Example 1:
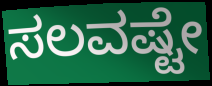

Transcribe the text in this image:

ಸಲವಷ್ಟೇ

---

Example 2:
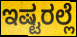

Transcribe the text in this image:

ಇಷ್ಟರಲ್ಲೆ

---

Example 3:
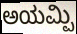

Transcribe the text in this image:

ಅಯಮ್ಪಿ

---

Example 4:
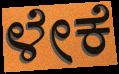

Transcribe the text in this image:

ಳೇಕೆ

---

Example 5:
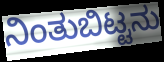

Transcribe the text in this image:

ನಿಂತುಬಿಟ್ಟನು